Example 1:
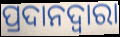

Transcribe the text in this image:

ପ୍ରଦାନଦ୍ୱାରା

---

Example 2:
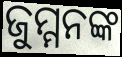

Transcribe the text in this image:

ଜୁମ୍ମନଙ୍କ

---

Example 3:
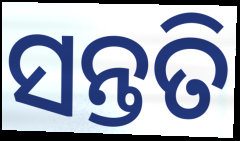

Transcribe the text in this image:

ସନ୍ତତି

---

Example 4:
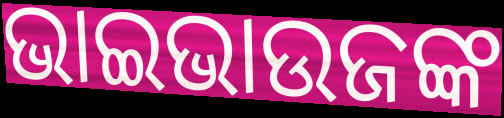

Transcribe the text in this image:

ଭାଇଭାଉଜଙ୍କ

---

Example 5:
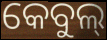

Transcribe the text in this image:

କେବୁଲ୍